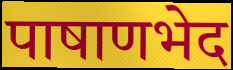
पाषाणभेद